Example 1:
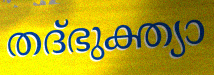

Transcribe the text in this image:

തദ്ഭുക്ത്യാ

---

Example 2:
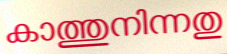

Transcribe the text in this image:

കാത്തുനിന്നതു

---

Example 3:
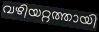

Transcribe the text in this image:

വഴിയറ്റത്തായി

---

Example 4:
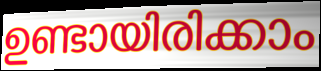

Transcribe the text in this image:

ഉണ്ടായിരിക്കാം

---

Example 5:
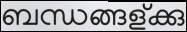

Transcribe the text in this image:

ബന്ധങ്ങള്ക്കു